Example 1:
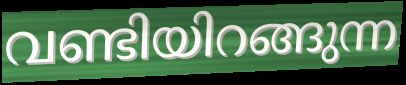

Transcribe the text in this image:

വണ്ടിയിറങ്ങുന്ന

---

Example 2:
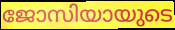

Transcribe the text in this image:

ജോസിയായുടെ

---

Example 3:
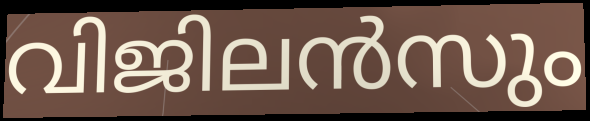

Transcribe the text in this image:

വിജിലൻസും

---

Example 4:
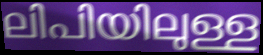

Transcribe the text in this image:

ലിപിയിലുള്ള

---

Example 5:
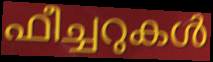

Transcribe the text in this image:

ഫീച്ചറുകൾ